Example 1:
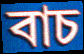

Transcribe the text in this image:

বাচ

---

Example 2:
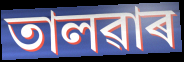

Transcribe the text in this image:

তালৱাৰ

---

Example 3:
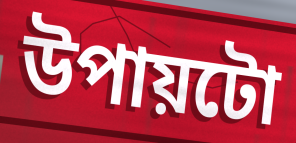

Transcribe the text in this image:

উপায়টো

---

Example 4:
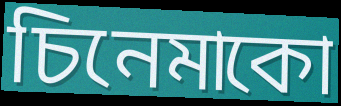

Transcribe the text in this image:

চিনেমাকো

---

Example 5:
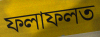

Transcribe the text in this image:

ফলাফলত